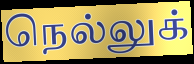
நெல்லுக்